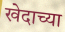
खेदाच्या